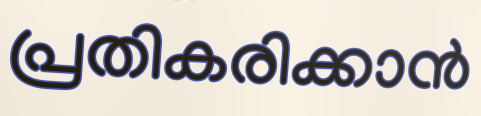
പ്രതികരിക്കാൻ